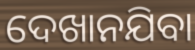
ଦେଖାନଯିବା